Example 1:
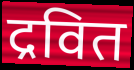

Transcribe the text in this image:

द्रवित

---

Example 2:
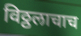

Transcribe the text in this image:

विठ्ठलाचाच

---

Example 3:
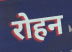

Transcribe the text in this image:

रोहन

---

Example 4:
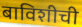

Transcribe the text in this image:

बाविशीची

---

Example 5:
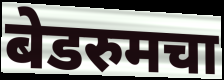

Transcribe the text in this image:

बेडरुमचा